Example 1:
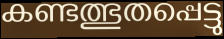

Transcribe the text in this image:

കണ്ടത്ഭുതപ്പെട്ടു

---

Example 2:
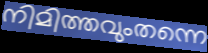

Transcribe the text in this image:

നിമിത്തവുംതന്നെ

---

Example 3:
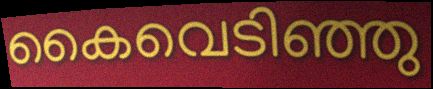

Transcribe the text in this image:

കൈവെടിഞ്ഞു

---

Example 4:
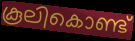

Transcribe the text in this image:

കൂലികൊണ്ട്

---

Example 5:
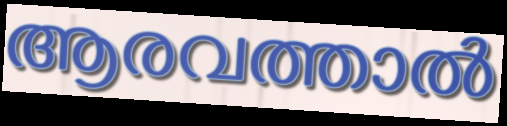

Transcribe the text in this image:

ആരവത്താൽ